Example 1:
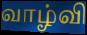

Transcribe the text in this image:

வாழ்வி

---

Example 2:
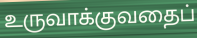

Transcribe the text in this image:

உருவாக்குவதைப்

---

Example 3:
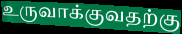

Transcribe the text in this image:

உருவாக்குவதற்கு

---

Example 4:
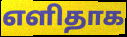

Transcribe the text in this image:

எளிதாக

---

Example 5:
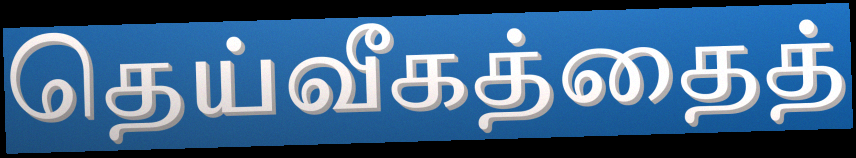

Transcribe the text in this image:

தெய்வீகத்தைத்